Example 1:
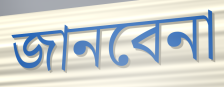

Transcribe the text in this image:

জানবেনা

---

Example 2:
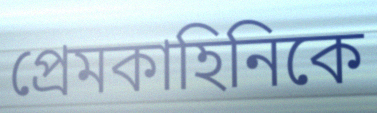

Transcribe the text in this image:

প্রেমকাহিনিকে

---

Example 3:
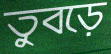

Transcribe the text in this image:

তুবড়ে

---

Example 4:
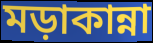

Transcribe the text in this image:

মড়াকান্না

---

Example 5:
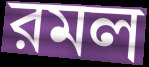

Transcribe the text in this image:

রমল